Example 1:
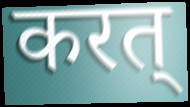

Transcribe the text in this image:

करत्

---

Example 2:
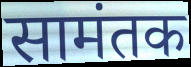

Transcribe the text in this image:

सामंतक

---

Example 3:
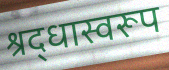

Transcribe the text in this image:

श्रद्धास्वरूप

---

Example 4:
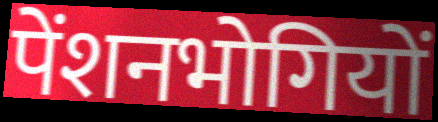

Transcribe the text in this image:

पेंशनभोगियों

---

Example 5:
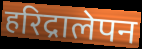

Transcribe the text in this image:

हरिद्रालेपन